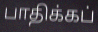
பாதிக்கப்